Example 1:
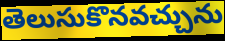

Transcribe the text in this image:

తెలుసుకొనవచ్చును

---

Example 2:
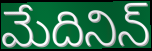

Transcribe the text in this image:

మేదినిన్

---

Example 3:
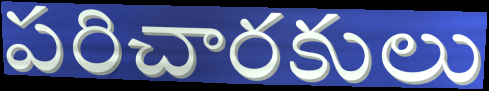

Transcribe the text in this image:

పరిచారకులు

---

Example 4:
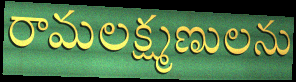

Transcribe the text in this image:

రామలక్ష్మణులను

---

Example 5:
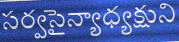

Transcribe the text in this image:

సర్వసైన్యాధ్యక్షుని